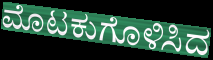
ಮೊಟಕುಗೊಳಿಸಿದ